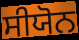
ਸੀਯੋਨ